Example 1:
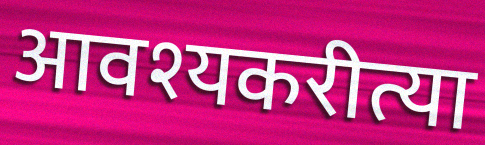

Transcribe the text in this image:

आवश्यकरीत्या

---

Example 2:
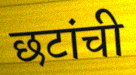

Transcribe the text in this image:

छटांची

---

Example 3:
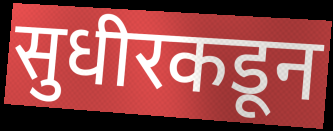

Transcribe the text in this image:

सुधीरकडून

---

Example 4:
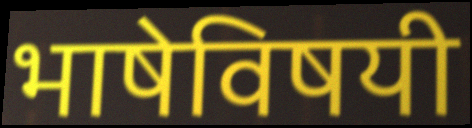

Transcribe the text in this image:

भाषेविषयी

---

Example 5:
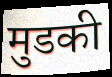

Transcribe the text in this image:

मुडकी